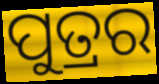
ପୁତ୍ରର